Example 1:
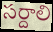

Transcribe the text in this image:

సర్దాలి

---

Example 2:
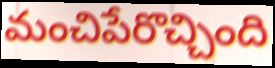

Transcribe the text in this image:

మంచిపేరొచ్చింది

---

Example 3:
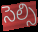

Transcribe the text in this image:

సెల్సి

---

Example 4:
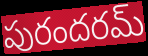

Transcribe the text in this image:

పురందరమ్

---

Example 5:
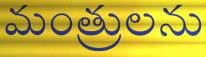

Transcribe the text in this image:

మంత్రులను